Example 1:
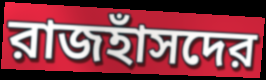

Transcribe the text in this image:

রাজহাঁসদের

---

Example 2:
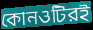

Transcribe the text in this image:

কোনওটিরই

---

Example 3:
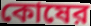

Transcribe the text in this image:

কোষের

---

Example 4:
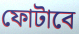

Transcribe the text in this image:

ফোটাবে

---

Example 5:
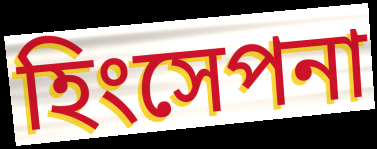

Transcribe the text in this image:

হিংসেপনা